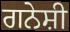
ਗਨੇਸ਼ੀ